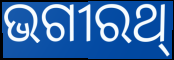
ଭଗୀରଥ୍